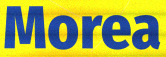
Morea